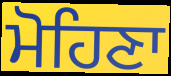
ਮੋਹਿਣਾ